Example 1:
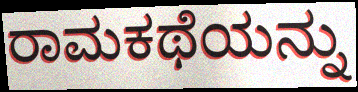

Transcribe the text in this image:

ರಾಮಕಥೆಯನ್ನು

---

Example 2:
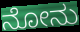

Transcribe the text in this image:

ನೋನು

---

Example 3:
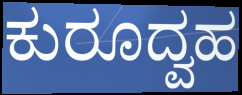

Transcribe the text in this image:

ಕುರೂದ್ವಹ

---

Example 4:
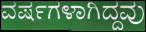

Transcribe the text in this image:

ವರ್ಷಗಳಾಗಿದ್ದವು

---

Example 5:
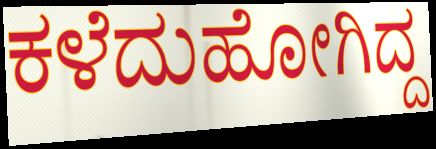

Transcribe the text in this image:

ಕಳೆದುಹೋಗಿದ್ದ